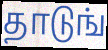
தாடுங்